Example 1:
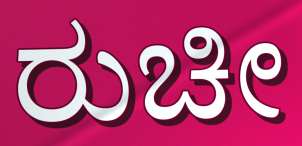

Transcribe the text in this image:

ರುಚೀ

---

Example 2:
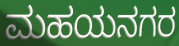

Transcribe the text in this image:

ಮಹಯನಗರ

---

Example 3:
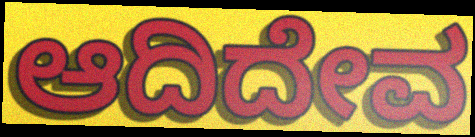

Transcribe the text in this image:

ಆದಿದೇವ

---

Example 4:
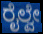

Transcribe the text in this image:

ರೈಲ್ವೇ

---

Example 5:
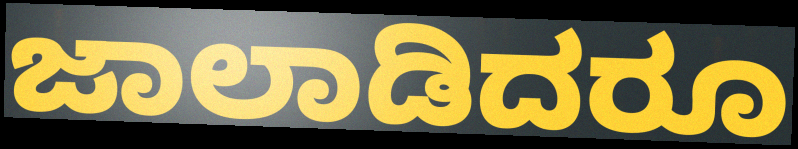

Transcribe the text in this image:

ಜಾಲಾಡಿದರೂ